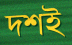
দশই